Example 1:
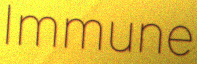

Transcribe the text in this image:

Immune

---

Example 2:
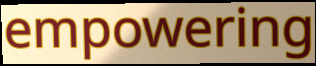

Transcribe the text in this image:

empowering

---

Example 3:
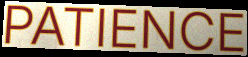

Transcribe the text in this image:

PATIENCE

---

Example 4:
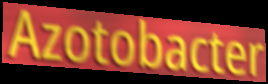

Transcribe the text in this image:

Azotobacter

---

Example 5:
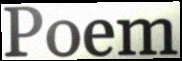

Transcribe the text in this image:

Poem